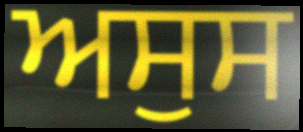
ਅਸੁਸ